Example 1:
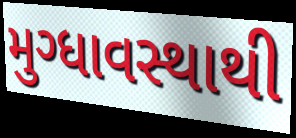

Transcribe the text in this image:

મુગ્ધાવસ્થાથી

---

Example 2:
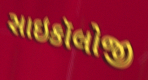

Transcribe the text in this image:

સાઇકૉલોજી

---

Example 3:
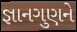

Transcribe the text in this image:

જ્ઞાનગુણને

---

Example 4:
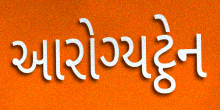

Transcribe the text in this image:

આરોગ્યટ્ઠેન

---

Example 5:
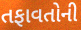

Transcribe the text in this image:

તફાવતોની